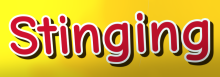
Stinging